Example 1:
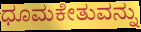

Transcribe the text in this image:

ಧೂಮಕೇತುವನ್ನು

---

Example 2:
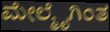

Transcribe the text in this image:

ಮೇಲ್ಮೈಗಿಂತ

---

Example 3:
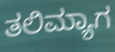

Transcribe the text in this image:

ತಲಿಮ್ಯಾಗ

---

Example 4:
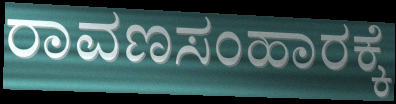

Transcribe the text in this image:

ರಾವಣಸಂಹಾರಕ್ಕೆ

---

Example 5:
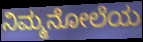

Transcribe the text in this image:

ನಿಮ್ಮನೋಲೆಯ